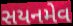
સયનમેવ